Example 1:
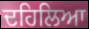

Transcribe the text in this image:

ਦਹਿਲਿਆ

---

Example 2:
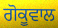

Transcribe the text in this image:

ਗੋਕੂਵਾਲ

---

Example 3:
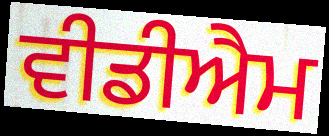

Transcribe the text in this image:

ਵੀਡੀਐਮ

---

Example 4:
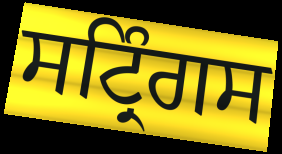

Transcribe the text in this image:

ਸਟ੍ਰਿੰਗਸ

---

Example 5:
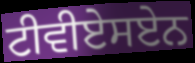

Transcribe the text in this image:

ਟੀਵੀਏਸਏਨ